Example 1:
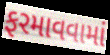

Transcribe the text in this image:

ફરમાવવામાં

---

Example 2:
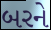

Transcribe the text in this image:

બરને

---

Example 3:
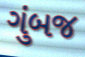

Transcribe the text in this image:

ગુંબજ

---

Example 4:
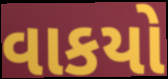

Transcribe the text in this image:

વાકયો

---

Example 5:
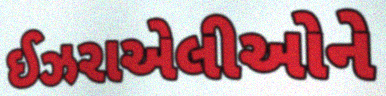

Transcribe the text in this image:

ઈઝરાએલીઓને